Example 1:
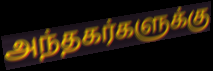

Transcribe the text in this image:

அந்தகர்களுக்கு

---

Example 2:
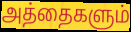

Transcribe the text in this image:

அத்தைகளும்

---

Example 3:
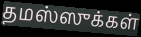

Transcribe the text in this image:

தமஸ்ஸுக்கள்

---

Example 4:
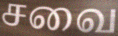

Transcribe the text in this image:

சவை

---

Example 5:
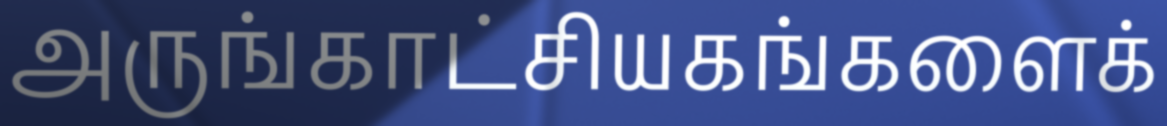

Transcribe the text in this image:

அருங்காட்சியகங்களைக்